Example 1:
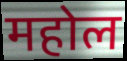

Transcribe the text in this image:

महोल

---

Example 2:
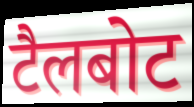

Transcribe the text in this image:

टैलबोट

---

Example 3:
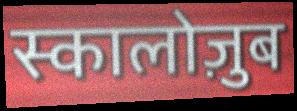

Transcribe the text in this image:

स्कालोज़ुब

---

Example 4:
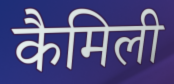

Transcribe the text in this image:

कैमिली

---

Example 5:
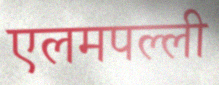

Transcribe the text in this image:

एलमपल्ली